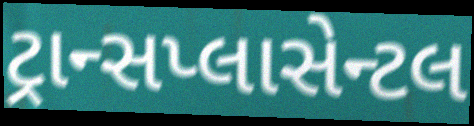
ટ્રાન્સપ્લાસેન્ટલ